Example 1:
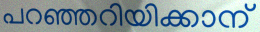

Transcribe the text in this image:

പറഞ്ഞറിയിക്കാന്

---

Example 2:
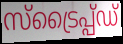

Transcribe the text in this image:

സ്ട്രൈപ്പ്ഡ്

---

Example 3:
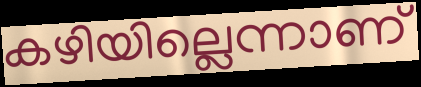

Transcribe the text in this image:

കഴിയില്ലെന്നാണ്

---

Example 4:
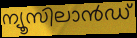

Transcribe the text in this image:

ന്യൂസിലാൻഡ്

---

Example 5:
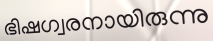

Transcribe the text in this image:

ഭിഷഗ്വരനായിരുന്നു